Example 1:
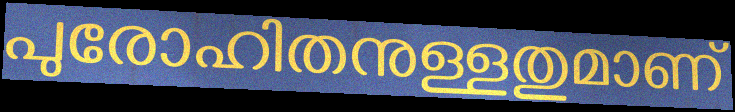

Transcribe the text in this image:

പുരോഹിതനുള്ളതുമാണ്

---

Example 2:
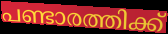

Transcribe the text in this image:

പണ്ടാരത്തിക്ക്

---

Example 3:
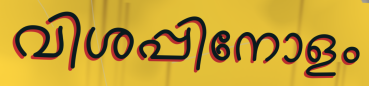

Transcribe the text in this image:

വിശപ്പിനോളം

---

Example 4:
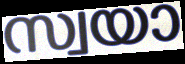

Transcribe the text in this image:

സ്വയാ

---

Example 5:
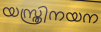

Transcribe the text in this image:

യസ്ത്രിനയന